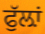
ਫੁੱਲ਼ਾਂ